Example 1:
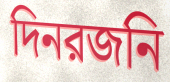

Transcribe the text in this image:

দিনরজনি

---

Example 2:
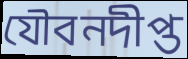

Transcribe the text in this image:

যৌবনদীপ্ত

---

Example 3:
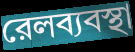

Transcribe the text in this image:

রেলব্যবস্থা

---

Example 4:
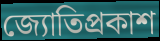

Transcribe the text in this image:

জ্যোতিপ্রকাশ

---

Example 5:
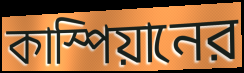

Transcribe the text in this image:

কাস্পিয়ানের